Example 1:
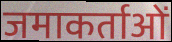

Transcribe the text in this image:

जमाकर्ताओं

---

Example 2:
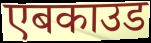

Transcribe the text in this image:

एबकाउड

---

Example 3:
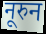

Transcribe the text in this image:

नूरुन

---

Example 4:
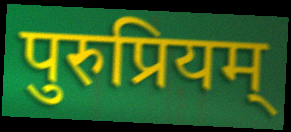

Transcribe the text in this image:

पुरुप्रियम्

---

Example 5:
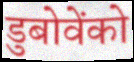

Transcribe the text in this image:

डुबोवेंको